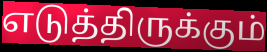
எடுத்திருக்கும்